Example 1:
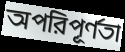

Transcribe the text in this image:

অপরিপূর্ণতা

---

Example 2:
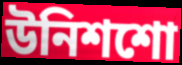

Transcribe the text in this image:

উনিশশো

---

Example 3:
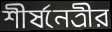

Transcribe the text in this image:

শীর্ষনেত্রীর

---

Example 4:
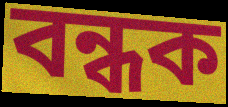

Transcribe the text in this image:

বন্ধক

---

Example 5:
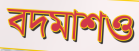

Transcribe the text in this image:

বদমাশও